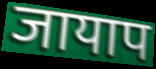
जायाप